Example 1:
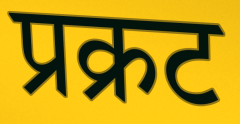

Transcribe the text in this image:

प्रक्रट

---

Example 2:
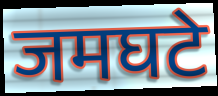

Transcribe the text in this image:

जमघटे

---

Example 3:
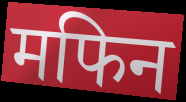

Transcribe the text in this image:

मफिन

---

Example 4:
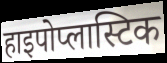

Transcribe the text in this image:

हाइपोप्लास्टिक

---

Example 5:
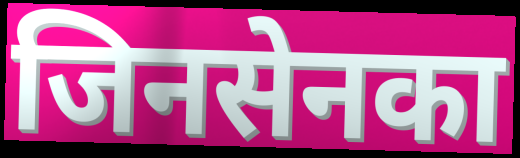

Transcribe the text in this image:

जिनसेनका